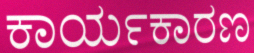
ಕಾರ್ಯಕಾರಣ